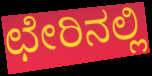
ಛೇರಿನಲ್ಲಿ